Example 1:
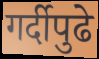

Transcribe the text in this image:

गर्दीपुढे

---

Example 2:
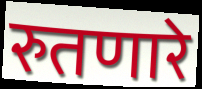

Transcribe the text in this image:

रुतणारे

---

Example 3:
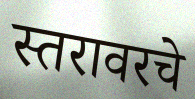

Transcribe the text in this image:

स्तरावरचे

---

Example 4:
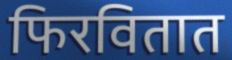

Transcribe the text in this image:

फिरवितात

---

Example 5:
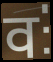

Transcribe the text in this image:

वः॑